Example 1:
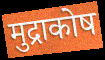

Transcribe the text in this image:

मुद्राकोष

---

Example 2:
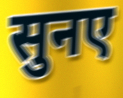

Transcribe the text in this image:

सुनए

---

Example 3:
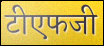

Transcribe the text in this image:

टीएफजी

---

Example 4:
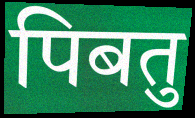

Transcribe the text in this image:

पिबतु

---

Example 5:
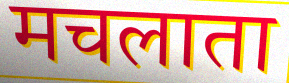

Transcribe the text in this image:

मचलाता